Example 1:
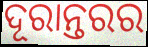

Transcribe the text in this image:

ଦୂରାନ୍ତରର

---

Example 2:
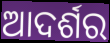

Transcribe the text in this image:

ଆଦର୍ଶର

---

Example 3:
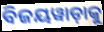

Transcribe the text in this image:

ବିଜୟୱାଡ଼ାକୁ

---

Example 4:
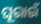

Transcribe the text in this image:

ଘୂରାଉଁ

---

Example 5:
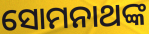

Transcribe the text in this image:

ସୋମନାଥଙ୍କ